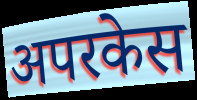
अपरकेस